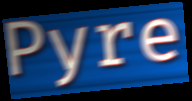
Pyre